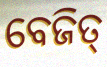
ବେଜିତ୍